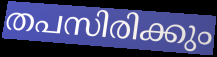
തപസിരിക്കും